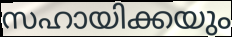
സഹായിക്കയും